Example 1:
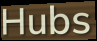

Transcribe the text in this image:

Hubs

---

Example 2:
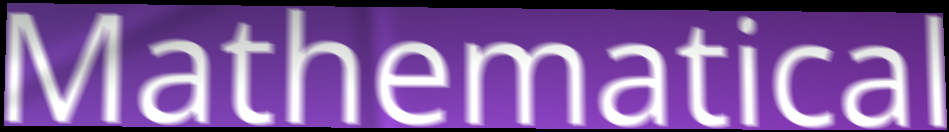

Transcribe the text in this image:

Mathematical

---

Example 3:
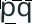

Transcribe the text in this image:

pq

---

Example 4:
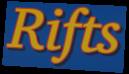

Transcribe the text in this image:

Rifts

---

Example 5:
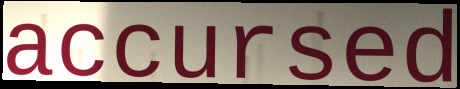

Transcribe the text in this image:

accursed